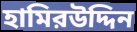
হামিরউদ্দিন